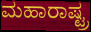
ಮಹಾರಾಷ್ಟ್ರ